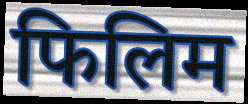
फिलिम